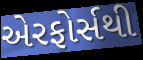
એરફોર્સથી